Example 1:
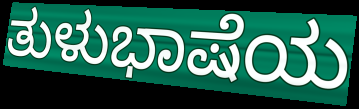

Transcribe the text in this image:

ತುಳುಭಾಷೆಯ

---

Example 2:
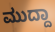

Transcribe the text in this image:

ಮುದ್ದಾ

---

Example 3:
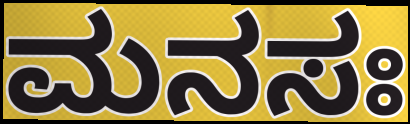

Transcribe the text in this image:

ಮನಸಃ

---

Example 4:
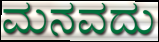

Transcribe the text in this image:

ಮನವದು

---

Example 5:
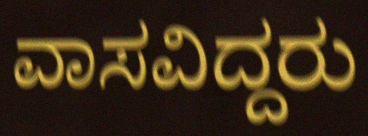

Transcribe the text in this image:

ವಾಸವಿದ್ದರು